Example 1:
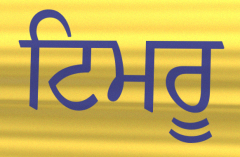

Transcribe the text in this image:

ਟਿਮਰੂ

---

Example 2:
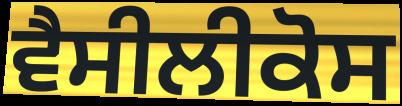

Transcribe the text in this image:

ਵੈਸੀਲੀਕੋਸ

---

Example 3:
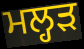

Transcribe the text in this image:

ਮਲ੍ਹੜ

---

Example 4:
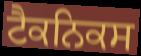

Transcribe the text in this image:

ਟੈਕਨਿਕਸ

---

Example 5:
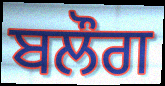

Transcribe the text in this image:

ਬਲੌਗ